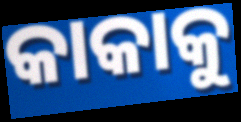
କାକାକୁ